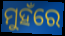
ମୁହଁରେ